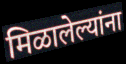
मिळालेल्यांना